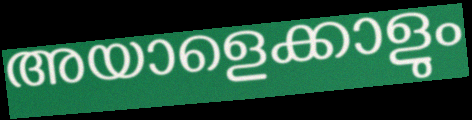
അയാളെക്കാളും